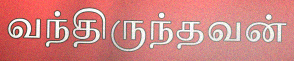
வந்திருந்தவன்